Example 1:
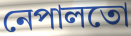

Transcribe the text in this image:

নেপালতো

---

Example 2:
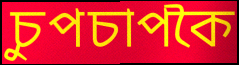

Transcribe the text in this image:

চুপচাপকৈ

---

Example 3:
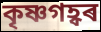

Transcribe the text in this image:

কৃষ্ণগহ্বৰ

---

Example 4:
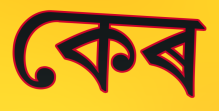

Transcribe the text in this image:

কেৰ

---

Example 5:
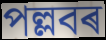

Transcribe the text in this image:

পল্লবৰ